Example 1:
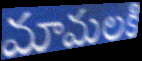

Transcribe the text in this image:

మామలకి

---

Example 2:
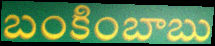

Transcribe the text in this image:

బంకింబాబు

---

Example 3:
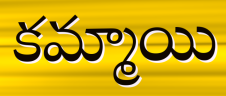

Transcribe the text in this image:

కమ్మాయి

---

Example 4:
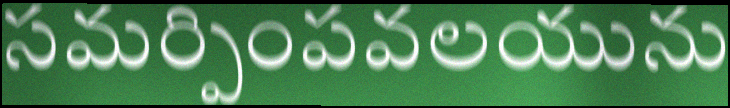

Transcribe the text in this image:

సమర్పింపవలయును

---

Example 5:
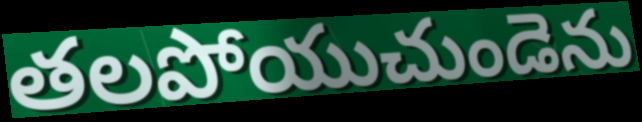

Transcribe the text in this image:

తలపోయుచుండెను